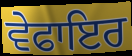
ਵੇਫਾਇਰ